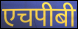
एचपीबी